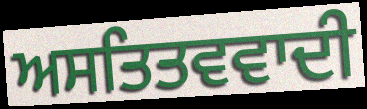
ਅਸਤਿਤਵਵਾਦੀ